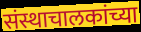
संस्थाचालकांच्या